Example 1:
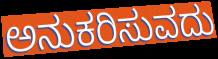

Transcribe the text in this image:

ಅನುಕರಿಸುವದು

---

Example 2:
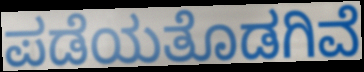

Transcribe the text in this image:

ಪಡೆಯತೊಡಗಿವೆ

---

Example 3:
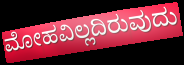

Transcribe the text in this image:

ಮೋಹವಿಲ್ಲದಿರುವುದು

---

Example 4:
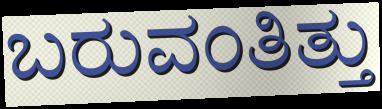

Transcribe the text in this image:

ಬರುವಂತಿತ್ತು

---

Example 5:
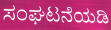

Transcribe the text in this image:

ಸಂಘಟನೆಯಡಿ